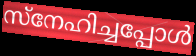
സ്നേഹിച്ചപ്പോൾ